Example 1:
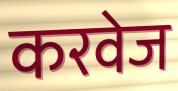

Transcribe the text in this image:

करवेज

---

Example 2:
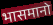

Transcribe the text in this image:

भासमानो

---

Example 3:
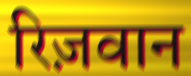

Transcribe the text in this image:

रिज़वान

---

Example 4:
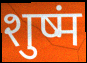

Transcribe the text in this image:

शुष्मं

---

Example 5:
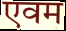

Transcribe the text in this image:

एवम